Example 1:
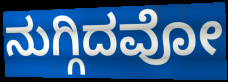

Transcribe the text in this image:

ನುಗ್ಗಿದವೋ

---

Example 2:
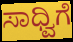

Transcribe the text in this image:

ಸಾಧ್ವಿಗೆ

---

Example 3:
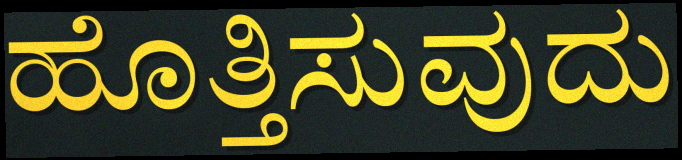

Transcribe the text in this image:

ಹೊತ್ತಿಸುವುದು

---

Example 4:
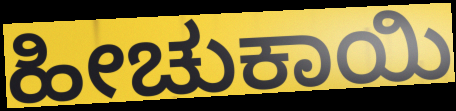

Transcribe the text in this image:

ಹೀಚುಕಾಯಿ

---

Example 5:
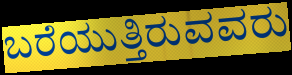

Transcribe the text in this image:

ಬರೆಯುತ್ತಿರುವವರು